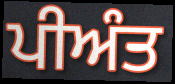
ਪੀਅੰਤ